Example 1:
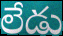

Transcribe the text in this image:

లేడు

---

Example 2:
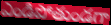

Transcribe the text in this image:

ఎండిపోతుండగా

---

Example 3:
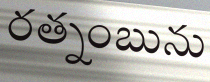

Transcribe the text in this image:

రత్నంబును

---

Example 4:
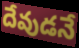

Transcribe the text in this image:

దేవుడనే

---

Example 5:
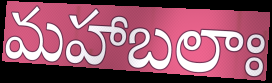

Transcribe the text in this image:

మహాబలాః